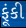
ફૂંકી